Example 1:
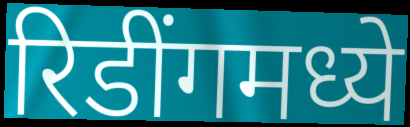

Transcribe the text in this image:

रिडींगमध्ये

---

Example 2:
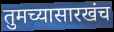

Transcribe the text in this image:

तुमच्यासारखंच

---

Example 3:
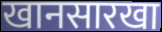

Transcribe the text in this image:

खानसारखा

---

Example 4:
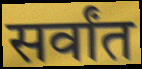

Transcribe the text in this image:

सर्वांत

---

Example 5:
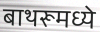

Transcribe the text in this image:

बाथरूमध्ये